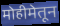
मोहीमेतून